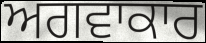
ਅਗਵਾਕਾਰ